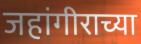
जहांगीराच्या